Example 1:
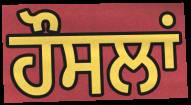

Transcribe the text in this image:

ਹੌਸਲਾਂ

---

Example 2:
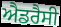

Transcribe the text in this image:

ਐਡਰੈਸੀ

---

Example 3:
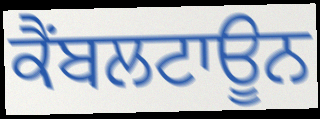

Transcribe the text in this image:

ਕੈਂਬਲਟਾਊਨ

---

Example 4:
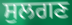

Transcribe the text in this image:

ਸੁਲਗਣ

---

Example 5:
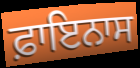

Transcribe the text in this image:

ਫ਼ਾਇਨਾਸ